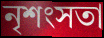
নৃশংসতা